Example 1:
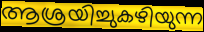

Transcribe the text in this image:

ആശ്രയിച്ചുകഴിയുന്ന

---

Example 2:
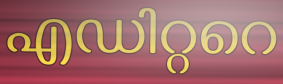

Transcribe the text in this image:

എഡിറ്ററെ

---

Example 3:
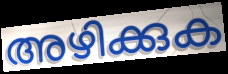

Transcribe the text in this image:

അഴിക്കുക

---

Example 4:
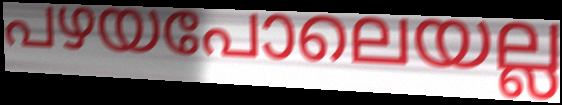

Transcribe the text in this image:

പഴയപോലെയല്ല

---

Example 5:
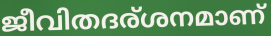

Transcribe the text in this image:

ജീവിതദര്ശനമാണ്